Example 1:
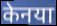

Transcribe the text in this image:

केनया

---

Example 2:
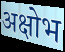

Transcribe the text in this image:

अक्षोभ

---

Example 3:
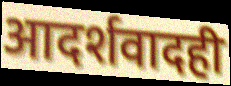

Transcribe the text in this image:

आदर्शवादही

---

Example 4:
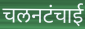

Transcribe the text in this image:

चलनटंचाई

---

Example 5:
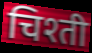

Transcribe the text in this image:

चिश्ती